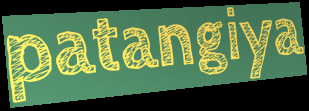
patangiya